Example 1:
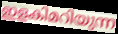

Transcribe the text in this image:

ഇളകിമറിയുന്ന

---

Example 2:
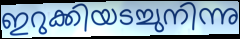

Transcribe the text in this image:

ഇറുക്കിയടച്ചുനിന്നു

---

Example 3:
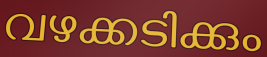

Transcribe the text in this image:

വഴക്കടിക്കും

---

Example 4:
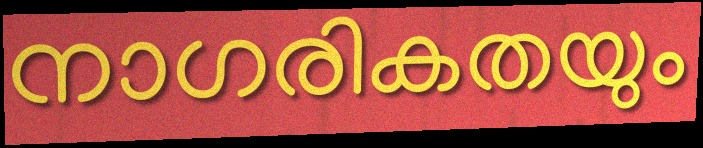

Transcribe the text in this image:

നാഗരികതയും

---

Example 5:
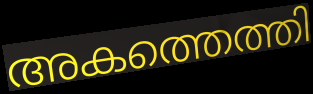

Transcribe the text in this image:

അകത്തെത്തി